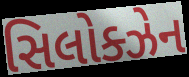
સિલોક્ઝેન